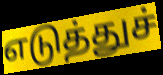
எடுத்துச்